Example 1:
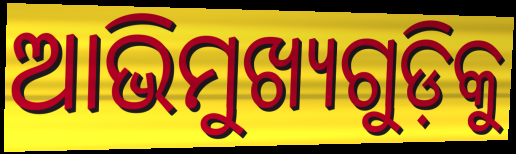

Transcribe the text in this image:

ଆଭିମୁଖ୍ୟଗୁଡ଼ିକୁ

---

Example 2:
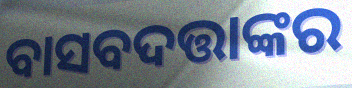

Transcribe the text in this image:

ବାସବଦତ୍ତାଙ୍କର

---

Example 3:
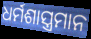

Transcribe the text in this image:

ଧର୍ମଶାସ୍ତ୍ରମାନ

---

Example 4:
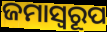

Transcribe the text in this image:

ଜମାସ୍ବରୂପ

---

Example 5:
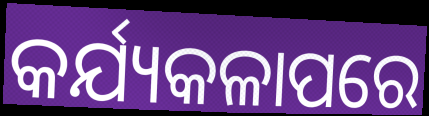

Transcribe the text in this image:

କର୍ଯ୍ୟକଳାପରେ